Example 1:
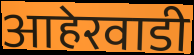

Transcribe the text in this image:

आहेरवाडी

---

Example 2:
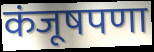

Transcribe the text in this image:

कंजूषपणा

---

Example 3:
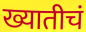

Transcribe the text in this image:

ख्यातीचं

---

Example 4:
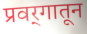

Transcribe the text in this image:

प्रवर्गातून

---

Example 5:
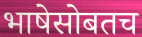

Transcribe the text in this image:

भाषेसोबतच